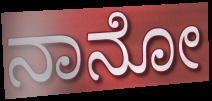
ನಾನೋ